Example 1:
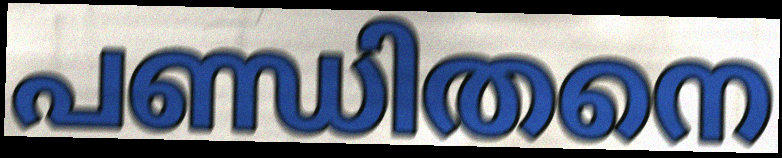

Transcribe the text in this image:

പണ്ഡിതനെ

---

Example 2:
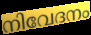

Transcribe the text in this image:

നിവേദനം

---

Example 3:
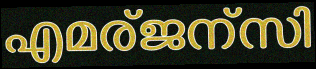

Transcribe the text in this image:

എമര്ജന്സി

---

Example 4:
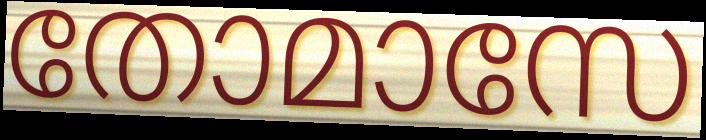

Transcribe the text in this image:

തോമാസേ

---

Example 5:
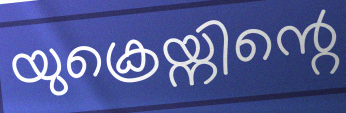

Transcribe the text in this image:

യുക്രെയ്നിന്റെ